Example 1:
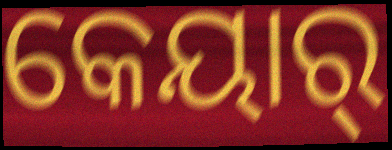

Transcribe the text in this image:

କେୟାର୍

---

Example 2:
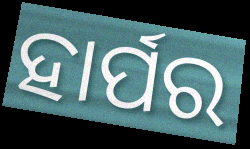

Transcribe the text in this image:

ହାର୍ପର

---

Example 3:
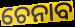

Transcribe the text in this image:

ଚେନାବ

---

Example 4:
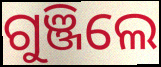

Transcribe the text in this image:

ଗୁଞ୍ଜିଲେ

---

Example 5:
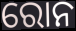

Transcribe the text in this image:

ରୋନ